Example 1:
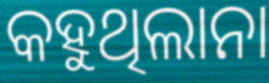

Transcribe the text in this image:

କହୁଥିଲାନା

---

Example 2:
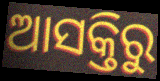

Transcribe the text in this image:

ଆସକ୍ତିରୁ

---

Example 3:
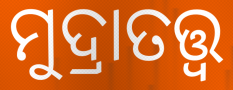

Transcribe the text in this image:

ମୁଦ୍ରାତତ୍ତ୍ବ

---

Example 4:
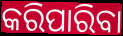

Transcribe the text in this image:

କରିପାରିବା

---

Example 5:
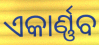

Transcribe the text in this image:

ଏକାର୍ଣ୍ଣବ